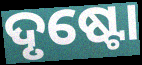
ଦୃଷ୍ଟୋ